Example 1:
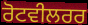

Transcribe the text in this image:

ਰੋਟਵੀਲਰਰ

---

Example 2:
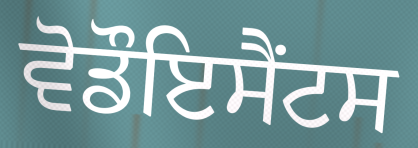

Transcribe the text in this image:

ਵੋਡੌਇਸੈਂਟਸ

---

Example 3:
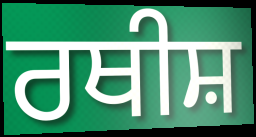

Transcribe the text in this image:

ਰਥੀਸ਼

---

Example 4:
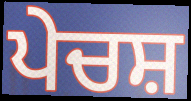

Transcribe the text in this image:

ਪੇਚਸ਼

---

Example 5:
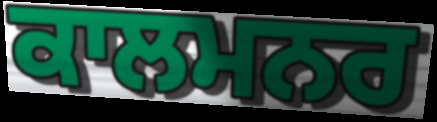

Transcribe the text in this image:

ਕਾਲਮਨਰ